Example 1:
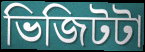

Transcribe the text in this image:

ভিজিটটা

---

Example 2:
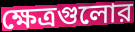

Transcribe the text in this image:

ক্ষেত্রগুলোর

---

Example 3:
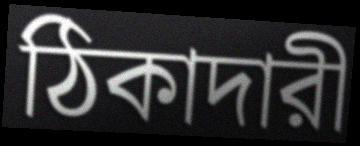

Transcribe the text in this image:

ঠিকাদারী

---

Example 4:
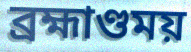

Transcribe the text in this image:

ব্রহ্মাণ্ডময়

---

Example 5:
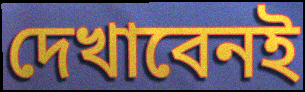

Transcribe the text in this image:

দেখাবেনই